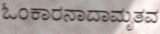
ಓಂಕಾರನಾದಾಮೃತವ